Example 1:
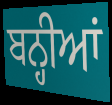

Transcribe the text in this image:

ਬਨ੍ਹੀਆਂ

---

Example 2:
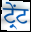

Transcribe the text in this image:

ਟ੍ਰੇਂਟ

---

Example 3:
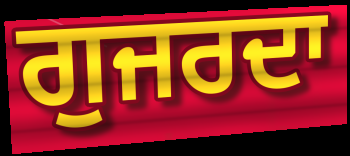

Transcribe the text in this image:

ਗੁਜਰਦਾ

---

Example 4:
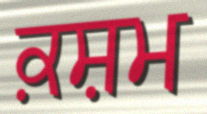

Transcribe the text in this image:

ਕ਼ਸ਼ਮ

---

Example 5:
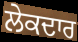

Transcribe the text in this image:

ਲੇਕਦਾਰ